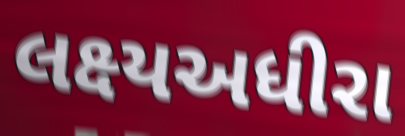
લક્ષ્યઅધીરા